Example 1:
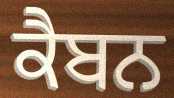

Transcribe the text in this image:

ਕੈਬਨ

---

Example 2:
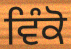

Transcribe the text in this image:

ਵਿੰਕੋ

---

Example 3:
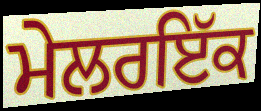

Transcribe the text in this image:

ਮੇਲਰਇੱਕ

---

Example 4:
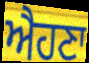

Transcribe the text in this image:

ਐਹਣਾ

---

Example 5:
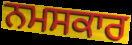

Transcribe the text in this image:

ਨਮਸਕਾਰ